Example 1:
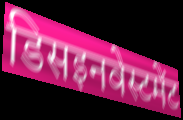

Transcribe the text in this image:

डिसइनवेस्टमेंट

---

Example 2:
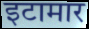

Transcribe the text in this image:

इटामार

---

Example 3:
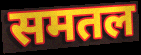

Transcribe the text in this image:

समतल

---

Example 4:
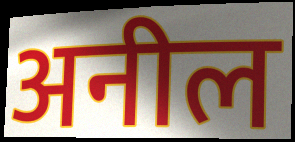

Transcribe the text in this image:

अनील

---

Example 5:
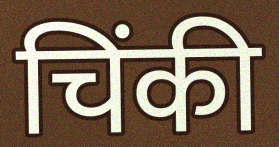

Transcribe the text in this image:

चिंकी